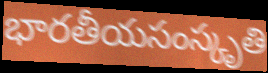
భారతీయసంస్కృతి